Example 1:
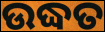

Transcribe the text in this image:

ଉଦ୍ଧତ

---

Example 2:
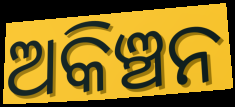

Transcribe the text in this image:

ଅକିଞ୍ଚନ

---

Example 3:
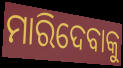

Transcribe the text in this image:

ମାରିଦେବାକୁ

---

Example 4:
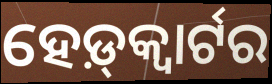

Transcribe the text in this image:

ହେଡ଼୍‌କ୍ୱାର୍ଟର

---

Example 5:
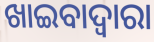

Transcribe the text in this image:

ଖାଇବାଦ୍ଵାରା